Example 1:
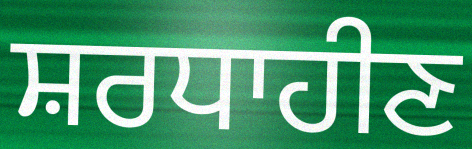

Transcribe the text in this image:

ਸ਼ਰਧਾਹੀਣ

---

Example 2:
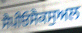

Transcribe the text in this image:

ਸੈਪੀਓਸੈਕਸੁਅਲ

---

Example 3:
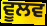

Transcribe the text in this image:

ਵੂਲਵ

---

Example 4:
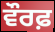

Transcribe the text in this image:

ਵੌਰਫ਼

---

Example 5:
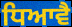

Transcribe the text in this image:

ਧਿਆਵੈ